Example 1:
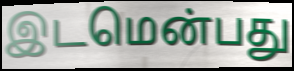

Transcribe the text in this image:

இடமென்பது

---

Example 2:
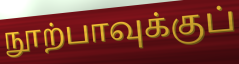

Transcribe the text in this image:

நூற்பாவுக்குப்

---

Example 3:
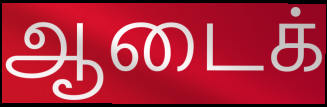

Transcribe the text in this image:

ஆடைக்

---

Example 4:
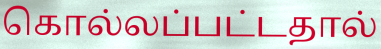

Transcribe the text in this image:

கொல்லப்பட்டதால்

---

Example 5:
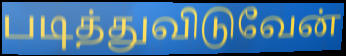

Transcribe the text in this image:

படித்துவிடுவேன்